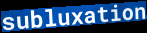
subluxation